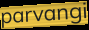
parvangi